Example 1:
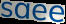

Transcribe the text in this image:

saee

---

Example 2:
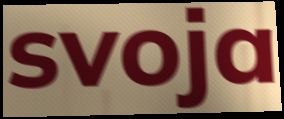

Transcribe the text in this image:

svoja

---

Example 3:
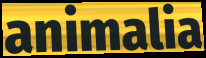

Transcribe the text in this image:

animalia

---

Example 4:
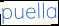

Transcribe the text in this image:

puella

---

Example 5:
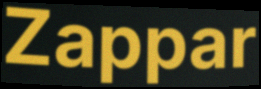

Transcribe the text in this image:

Zappar